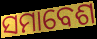
ସମାବେଶ